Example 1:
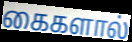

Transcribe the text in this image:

கைகளால்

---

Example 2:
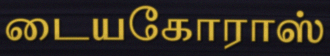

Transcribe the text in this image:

டையகோராஸ்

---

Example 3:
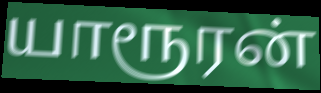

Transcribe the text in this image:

யாரூரன்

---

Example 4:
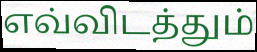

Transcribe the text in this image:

எவ்விடத்தும்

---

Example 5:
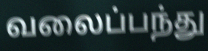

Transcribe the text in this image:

வலைப்பந்து